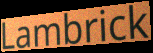
Lambrick